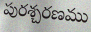
పురశ్చరణము